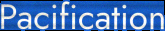
Pacification